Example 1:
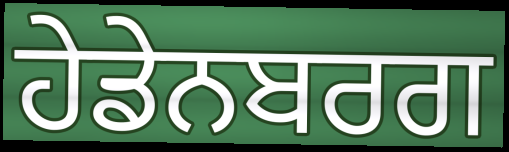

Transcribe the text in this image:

ਹੇਡੇਨਬਰਗ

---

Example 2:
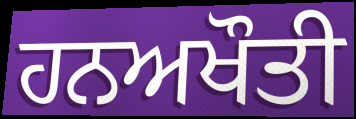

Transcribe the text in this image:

ਹਨਅਖੌਤੀ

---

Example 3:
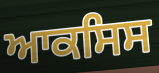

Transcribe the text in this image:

ਆਕਸਿਸ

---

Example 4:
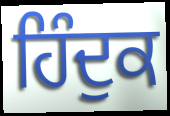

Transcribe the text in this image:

ਹਿੰਦੁਕ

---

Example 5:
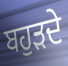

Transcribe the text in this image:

ਬਹੁੜਦੇ